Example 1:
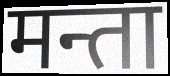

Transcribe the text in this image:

मन्ता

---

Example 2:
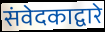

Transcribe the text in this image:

संवेदकाद्वारे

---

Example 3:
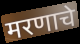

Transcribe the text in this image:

मरणाचे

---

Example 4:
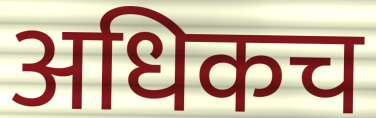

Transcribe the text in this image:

अधिकच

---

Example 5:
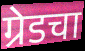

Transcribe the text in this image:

ग्रेडचा